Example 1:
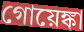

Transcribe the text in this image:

গোয়েঙ্কা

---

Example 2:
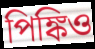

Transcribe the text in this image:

পিঙ্কিও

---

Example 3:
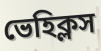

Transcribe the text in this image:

ভেহিক্লস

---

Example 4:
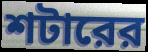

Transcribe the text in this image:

শটারের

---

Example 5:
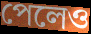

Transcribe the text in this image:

পেলেও